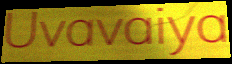
Uvavaiya